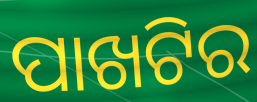
ପାଖଟିର